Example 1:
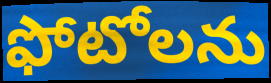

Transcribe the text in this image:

ఫోటోలను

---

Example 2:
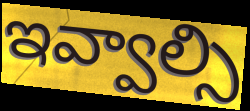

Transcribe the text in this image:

ఇవ్వాల్సి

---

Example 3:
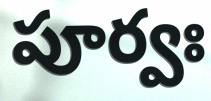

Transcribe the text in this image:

పూర్వః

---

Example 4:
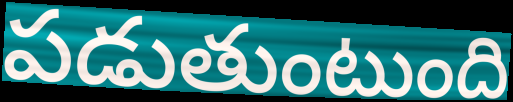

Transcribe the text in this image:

పడుతుంటుంది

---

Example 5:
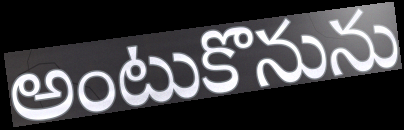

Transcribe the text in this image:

అంటుకొనును